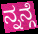
ನ್ನನ್ಗೆ